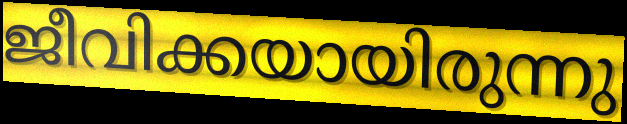
ജീവിക്കയായിരുന്നു